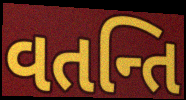
વતન્તિ